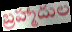
బ్రహ్మాదుల